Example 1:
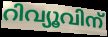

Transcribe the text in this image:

റിവ്യൂവിന്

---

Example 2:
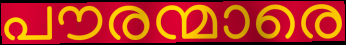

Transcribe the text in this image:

പൗരന്മാരെ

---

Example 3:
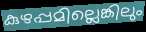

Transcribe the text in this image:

കുഴപ്പമില്ലെങ്കിലും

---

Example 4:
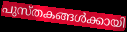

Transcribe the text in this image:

പുസ്തകങ്ങൾക്കായി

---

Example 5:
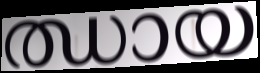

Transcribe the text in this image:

ഝായ